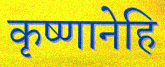
कृष्णानेहि